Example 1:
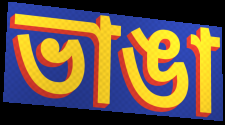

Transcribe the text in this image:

ভাঙা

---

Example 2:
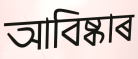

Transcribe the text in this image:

আবিষ্কাৰ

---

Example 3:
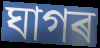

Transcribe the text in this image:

ঘাগৰ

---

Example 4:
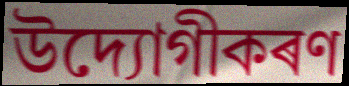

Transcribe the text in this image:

উদ্যোগীকৰণ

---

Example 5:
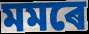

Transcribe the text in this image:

মমৰে